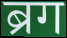
ब्रग